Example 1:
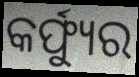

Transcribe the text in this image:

କର୍ଫ୍ୟୁର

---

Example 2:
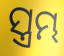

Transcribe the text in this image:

ସ୍ତ୍ରମ୍ଭ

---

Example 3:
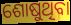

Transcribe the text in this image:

ଶୋଷୁଥିବା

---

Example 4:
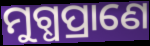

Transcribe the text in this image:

ମୁଗ୍ଧପ୍ରାଣେ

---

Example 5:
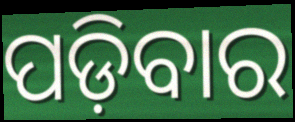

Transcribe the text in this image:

ପଡ଼ିବାର